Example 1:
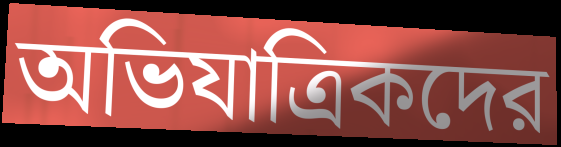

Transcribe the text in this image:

অভিযাত্রিকদের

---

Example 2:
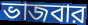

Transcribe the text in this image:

ভাজবার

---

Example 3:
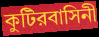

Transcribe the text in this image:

কুটিরবাসিনী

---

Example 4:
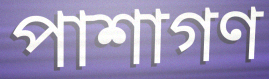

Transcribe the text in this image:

পাশাগণ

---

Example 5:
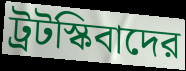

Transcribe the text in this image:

ট্রটস্কিবাদের